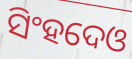
ସିଂହଦେଓ